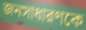
জনসাধারণকে